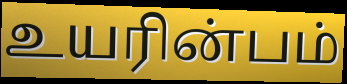
உயரின்பம்